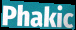
Phakic